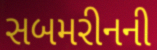
સબમરીનની